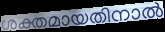
ശക്തമായതിനാൽ